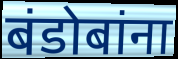
बंडोबांना